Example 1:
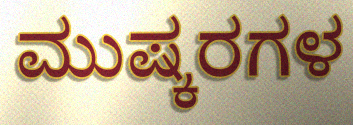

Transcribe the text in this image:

ಮುಷ್ಕರಗಳ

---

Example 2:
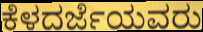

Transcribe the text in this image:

ಕೆಳದರ್ಜೆಯವರು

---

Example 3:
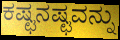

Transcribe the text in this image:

ಕಷ್ಟನಷ್ಟವನ್ನು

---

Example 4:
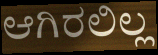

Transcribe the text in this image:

ಆಗಿರಲಿಲ್ಲ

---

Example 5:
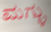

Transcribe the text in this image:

ಮಗ್ಳು